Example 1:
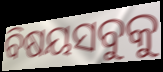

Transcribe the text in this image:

ବିଷୟସବୁକୁ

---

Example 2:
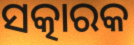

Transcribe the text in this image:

ସତ୍କାରକ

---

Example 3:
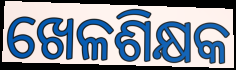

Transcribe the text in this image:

ଖେଳଶିକ୍ଷକ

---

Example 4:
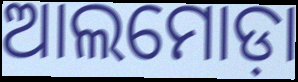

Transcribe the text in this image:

ଆଲମୋଡ଼ା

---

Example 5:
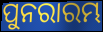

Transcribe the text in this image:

ପୁନରାରମ୍ଭ